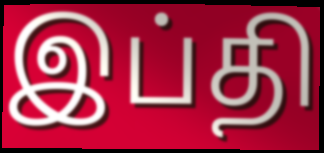
இப்தி